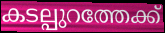
കടല്പുറത്തേക്ക്